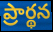
ప్రార్థన